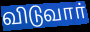
விடுவார்